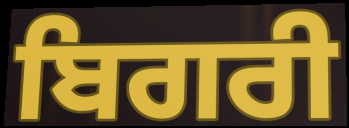
ਬਿਗਰੀ